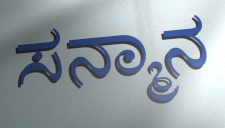
ಸನ್ಮಾನ